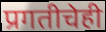
प्रगतीचेही